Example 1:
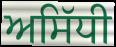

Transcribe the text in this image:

ਅਸਿੱਧੀ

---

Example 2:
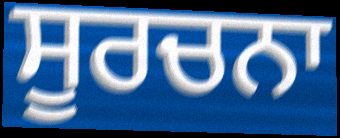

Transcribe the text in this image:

ਸੂਰਚਨਾ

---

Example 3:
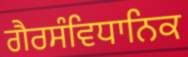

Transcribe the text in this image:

ਗੈਰਸੰਵਿਧਾਨਿਕ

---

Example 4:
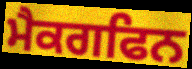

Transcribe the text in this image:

ਮੈਕਗਫਿਨ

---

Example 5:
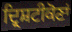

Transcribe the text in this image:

ਦ੍ਰਿਸ਼ਟੀਕੋਣਾਂ